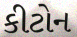
કીટોન